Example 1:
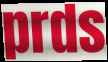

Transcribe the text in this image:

prds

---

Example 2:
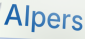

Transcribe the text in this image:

Alpers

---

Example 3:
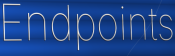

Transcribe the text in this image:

Endpoints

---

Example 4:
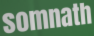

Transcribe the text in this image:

somnath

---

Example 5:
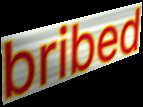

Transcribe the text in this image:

bribed